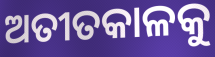
ଅତୀତକାଳକୁ